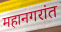
महानगरांत